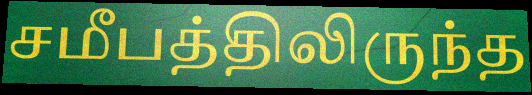
சமீபத்திலிருந்த